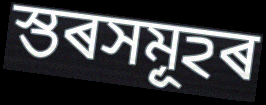
স্তৰসমূহৰ